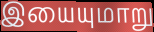
இயையுமாறு